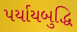
પર્યાયબુદ્ધિ